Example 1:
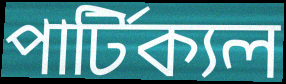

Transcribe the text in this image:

পার্টিক্যল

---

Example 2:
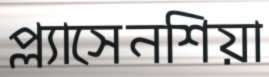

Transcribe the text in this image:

প্ল্যাসেনশিয়া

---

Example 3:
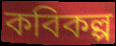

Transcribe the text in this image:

কবিকল্প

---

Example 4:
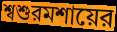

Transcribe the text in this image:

শ্বশুরমশায়ের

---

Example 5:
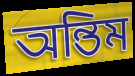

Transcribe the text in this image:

অন্তিম